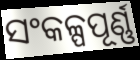
ସଂକଳ୍ପପୂର୍ଣ୍ଣ